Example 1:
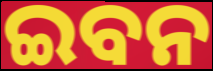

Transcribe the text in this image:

ଇବନ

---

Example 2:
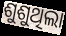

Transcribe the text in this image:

ଶୁଶୁଥିଲା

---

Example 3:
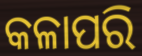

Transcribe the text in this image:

କଳାପରି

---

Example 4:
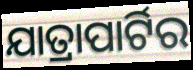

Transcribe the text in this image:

ଯାତ୍ରାପାର୍ଟିର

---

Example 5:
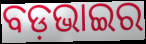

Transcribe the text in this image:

ବଡ଼ଭାଇର